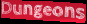
Dungeons